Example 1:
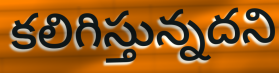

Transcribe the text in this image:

కలిగిస్తున్నదని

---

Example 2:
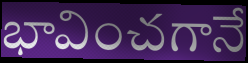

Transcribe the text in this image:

భావించగానే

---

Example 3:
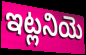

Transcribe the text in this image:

ఇట్లనియె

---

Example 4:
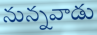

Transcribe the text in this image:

నున్నవాడు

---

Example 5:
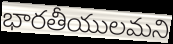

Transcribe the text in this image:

భారతీయులమని